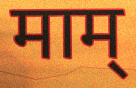
माम्